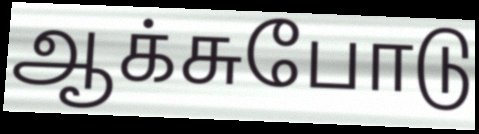
ஆக்சுபோடு